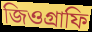
জিওগ্রাফি